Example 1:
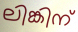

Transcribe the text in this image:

ലിങ്കിന്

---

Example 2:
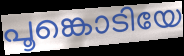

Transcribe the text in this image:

പൂങ്കൊടിയേ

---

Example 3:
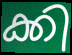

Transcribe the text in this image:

ക്കി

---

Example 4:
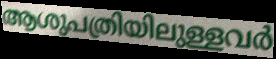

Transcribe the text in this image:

ആശുപത്രിയിലുള്ളവർ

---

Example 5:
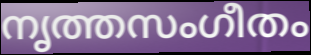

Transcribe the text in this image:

നൃത്തസംഗീതം